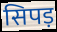
सिपड़